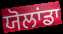
ਯੋਲਾਂਡਾ